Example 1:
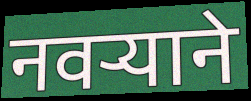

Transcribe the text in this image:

नवर्‍याने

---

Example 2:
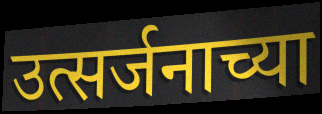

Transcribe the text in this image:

उत्सर्जनाच्या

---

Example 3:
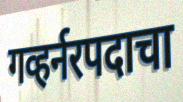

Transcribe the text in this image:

गव्हर्नरपदाचा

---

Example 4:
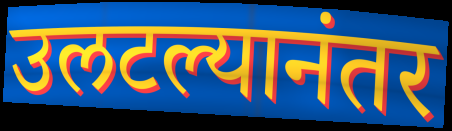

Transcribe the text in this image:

उलटल्यानंतर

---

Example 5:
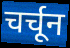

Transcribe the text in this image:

चर्चून